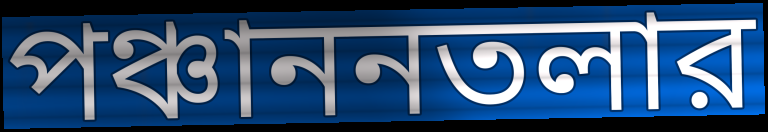
পঞ্চাননতলার